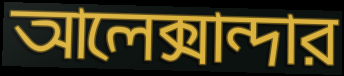
আলেক্সান্দার